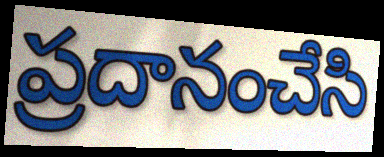
ప్రదానంచేసి